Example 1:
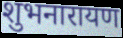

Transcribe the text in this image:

शुभनारायण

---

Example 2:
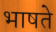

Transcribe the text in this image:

भाषते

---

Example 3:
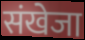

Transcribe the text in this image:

संखेजा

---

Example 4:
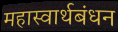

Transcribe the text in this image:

महास्वार्थबंधन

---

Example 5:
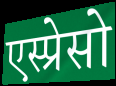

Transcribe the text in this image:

एस्प्रेसो